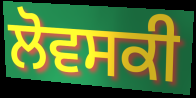
ਲੋਵਸਕੀ